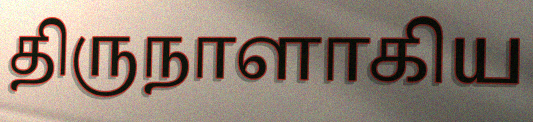
திருநாளாகிய